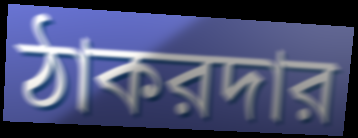
ঠাকরদার